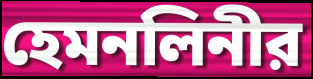
হেমনলিনীর